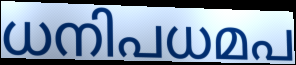
ധനിപധമപ